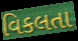
વિકલતા